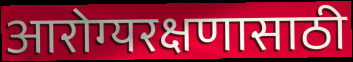
आरोग्यरक्षणासाठी